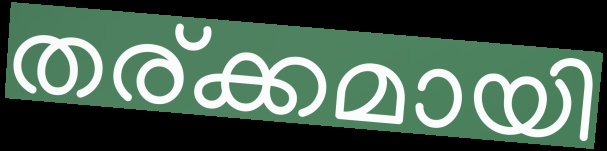
തര്ക്കമായി